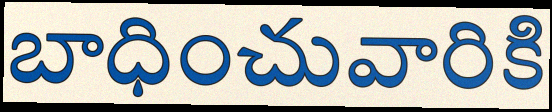
బాధించువారికి